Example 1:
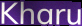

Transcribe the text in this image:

Kharu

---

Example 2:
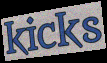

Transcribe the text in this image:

kicks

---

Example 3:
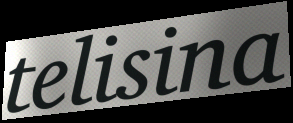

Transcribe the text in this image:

telisina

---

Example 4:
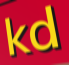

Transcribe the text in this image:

kd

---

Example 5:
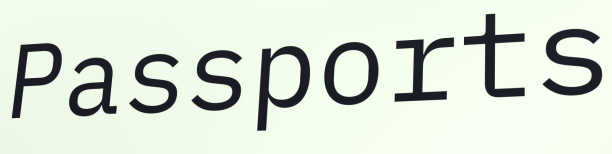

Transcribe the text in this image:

Passports